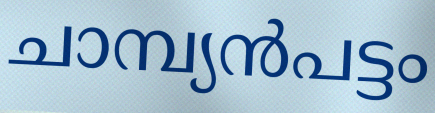
ചാമ്പ്യൻപട്ടം